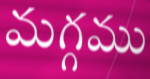
మగ్గము